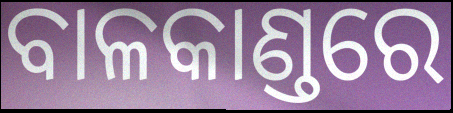
ବାଳକାଣ୍ଡରେ